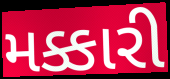
મક્કારી